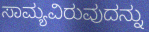
ಸಾಮ್ಯವಿರುವುದನ್ನು